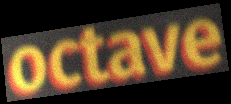
octave